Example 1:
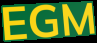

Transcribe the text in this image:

EGM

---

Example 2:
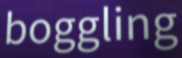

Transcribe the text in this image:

boggling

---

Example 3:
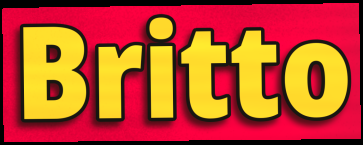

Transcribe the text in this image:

Britto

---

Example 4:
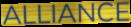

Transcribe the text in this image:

ALLIANCE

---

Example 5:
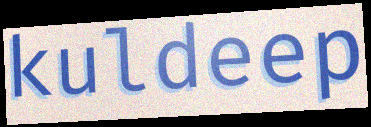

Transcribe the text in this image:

kuldeep